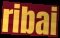
ribai